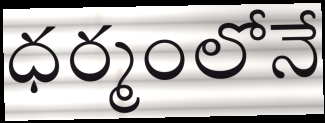
ధర్మంలోనే